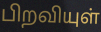
பிறவியுள்